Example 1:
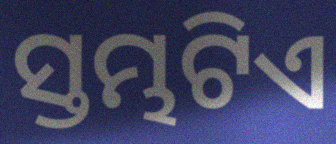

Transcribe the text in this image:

ସ୍ତମ୍ଭଟିଏ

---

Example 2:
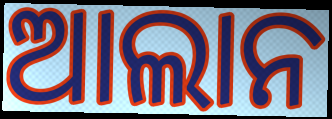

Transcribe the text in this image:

ଆଲାନ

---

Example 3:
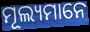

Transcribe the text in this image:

ମୂଲ୍ୟମାନେ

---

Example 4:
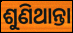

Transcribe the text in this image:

ଶୁଣିଥାନ୍ତା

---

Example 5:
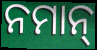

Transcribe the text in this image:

ନମାନ୍